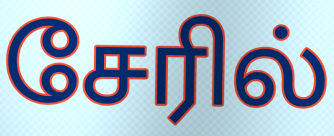
சேரில்